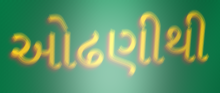
ઓઢણીથી